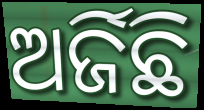
ଅର୍ଜିଛି